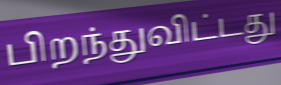
பிறந்துவிட்டது